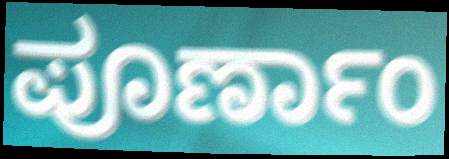
ಪೂರ್ಣಾಂ